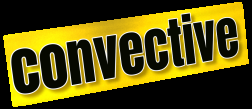
convective